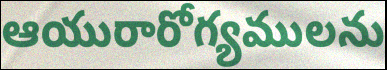
ఆయురారోగ్యములను